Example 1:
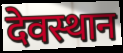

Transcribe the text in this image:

देवस्थान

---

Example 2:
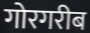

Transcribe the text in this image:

गोरगरीब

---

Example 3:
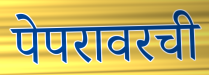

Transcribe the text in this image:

पेपरावरची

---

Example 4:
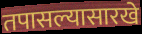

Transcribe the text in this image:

तपासल्यासारखे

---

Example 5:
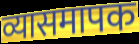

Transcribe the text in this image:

व्यासमापक